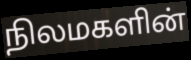
நிலமகளின்